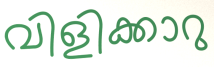
വിളിക്കാറു